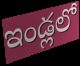
ఇండ్లలో